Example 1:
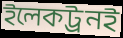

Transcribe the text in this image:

ইলেকট্রনই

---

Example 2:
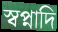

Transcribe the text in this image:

স্বপ্নাদি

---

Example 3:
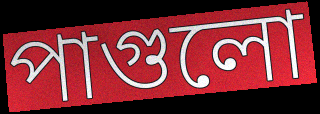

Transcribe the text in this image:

পাগুলো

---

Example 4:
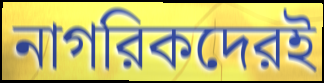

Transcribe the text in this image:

নাগরিকদেরই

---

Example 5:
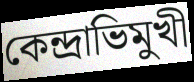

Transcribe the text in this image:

কেন্দ্রাভিমুখী